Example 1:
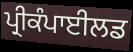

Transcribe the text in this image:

ਪ੍ਰੀਕੰਪਾਈਲਡ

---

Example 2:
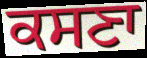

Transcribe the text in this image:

ਕਸਣਾ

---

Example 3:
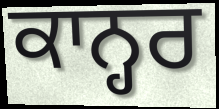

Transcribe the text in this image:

ਕਾਨ੍ਹਰ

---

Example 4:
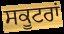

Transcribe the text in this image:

ਸਕੂਟਰਾਂ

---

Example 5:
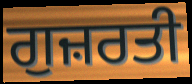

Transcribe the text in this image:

ਗੁਜ਼ਰਤੀ